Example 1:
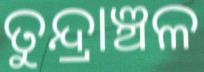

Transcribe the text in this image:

ତୁନ୍ଦ୍ରାଞ୍ଚଳ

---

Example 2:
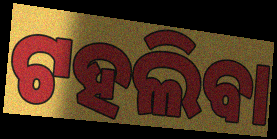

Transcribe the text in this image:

ଟହଲିବା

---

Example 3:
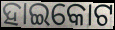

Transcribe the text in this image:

ହାଇକୋଟ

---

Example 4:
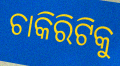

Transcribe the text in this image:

ଚାକିରିଟିକୁ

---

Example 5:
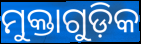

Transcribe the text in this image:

ମୁକ୍ତାଗୁଡ଼ିକ